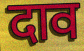
दाव